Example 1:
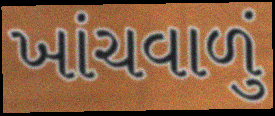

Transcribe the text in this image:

ખાંચવાળું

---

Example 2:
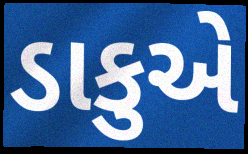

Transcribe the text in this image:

ડાકુએ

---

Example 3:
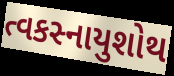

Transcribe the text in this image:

ત્વકસ્નાયુશોથ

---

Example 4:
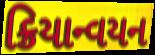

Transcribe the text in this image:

ક્રિયાન્વયન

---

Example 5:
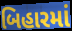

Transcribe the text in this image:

બિહારમાં